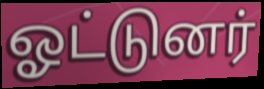
ஓட்டுனர்